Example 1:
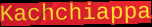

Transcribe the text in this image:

Kachchiappa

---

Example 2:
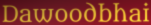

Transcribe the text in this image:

Dawoodbhai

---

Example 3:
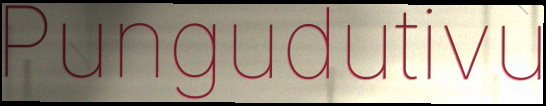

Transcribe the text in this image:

Pungudutivu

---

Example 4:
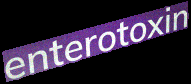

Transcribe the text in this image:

enterotoxin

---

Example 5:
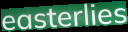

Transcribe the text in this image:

easterlies